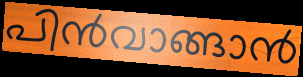
പിൻവാങ്ങാൻ